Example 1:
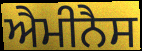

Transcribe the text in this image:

ਐਮੀਨੈਸ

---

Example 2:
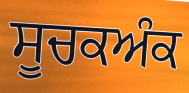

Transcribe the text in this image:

ਸੂਚਕਅੰਕ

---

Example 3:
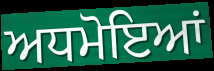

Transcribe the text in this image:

ਅਧਮੋਇਆਂ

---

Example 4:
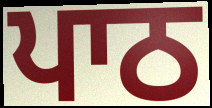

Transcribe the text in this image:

ਪਾਠ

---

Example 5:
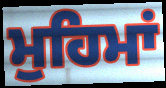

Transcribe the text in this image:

ਮੁਹਿਮਾਂ